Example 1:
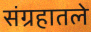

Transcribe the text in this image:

संग्रहातले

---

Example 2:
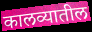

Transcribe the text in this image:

कालव्यातील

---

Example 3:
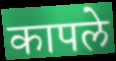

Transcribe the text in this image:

कापले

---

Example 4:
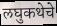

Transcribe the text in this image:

लघुकथेचे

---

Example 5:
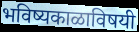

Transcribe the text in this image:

भविष्यकाळाविषयी